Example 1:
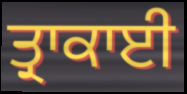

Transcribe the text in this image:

ਤ੍ਰਾਕਾਈ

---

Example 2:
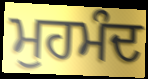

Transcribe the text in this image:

ਮੁਹਮੰਦ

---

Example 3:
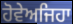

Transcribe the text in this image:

ਹੋਵੇਅਜਿਹਾ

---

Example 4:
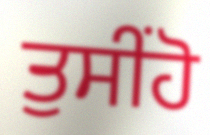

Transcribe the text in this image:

ਤੁਸੀਂਹੋ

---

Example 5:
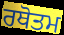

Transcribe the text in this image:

ਰਥੋਤਮ